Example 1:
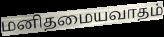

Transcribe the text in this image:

மனிதமையவாதம்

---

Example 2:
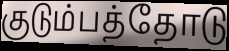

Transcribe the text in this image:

குடும்பத்தோடு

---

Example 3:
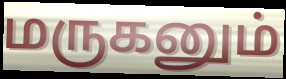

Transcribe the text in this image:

மருகனும்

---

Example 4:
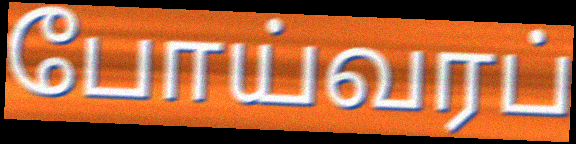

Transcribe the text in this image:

போய்வரப்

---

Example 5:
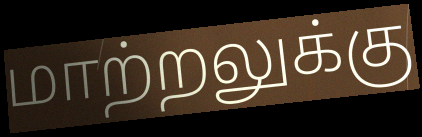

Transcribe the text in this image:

மாற்றலுக்கு